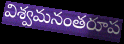
విశ్వమనంతరూప